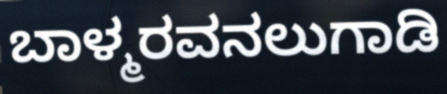
ಬಾಳ್ಮರವನಲುಗಾಡಿ